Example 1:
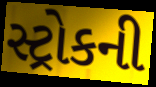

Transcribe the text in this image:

સ્ટ્રોકની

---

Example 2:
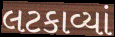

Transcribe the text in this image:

લટકાવ્યાં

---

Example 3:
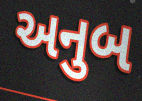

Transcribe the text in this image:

અનુબ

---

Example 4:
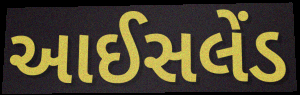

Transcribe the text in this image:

આઈસલેંડ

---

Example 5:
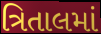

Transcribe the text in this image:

ત્રિતાલમાં